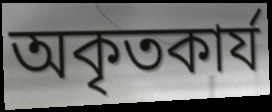
অকৃতকাৰ্য